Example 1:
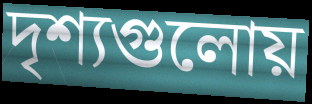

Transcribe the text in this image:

দৃশ্যগুলোয়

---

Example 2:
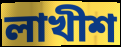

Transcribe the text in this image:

লাখীশ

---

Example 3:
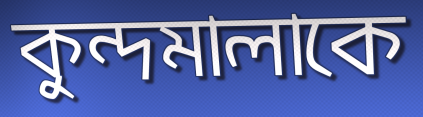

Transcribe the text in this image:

কুন্দমালাকে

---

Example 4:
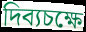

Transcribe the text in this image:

দিব্যচক্ষে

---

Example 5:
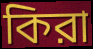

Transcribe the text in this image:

কিরা